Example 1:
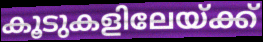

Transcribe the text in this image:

കൂടുകളിലേയ്ക്ക്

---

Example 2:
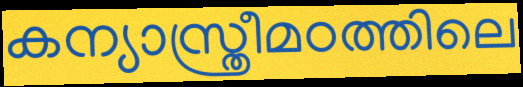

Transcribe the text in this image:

കന്യാസ്ത്രീമഠത്തിലെ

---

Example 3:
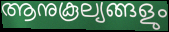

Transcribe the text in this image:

ആനുകൂല്യങ്ങളും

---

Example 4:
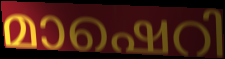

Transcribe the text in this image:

മാഷെറി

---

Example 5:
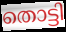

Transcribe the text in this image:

തൊട്ടി